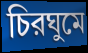
চিরঘুমে